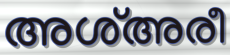
അശ്അരീ